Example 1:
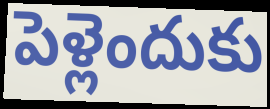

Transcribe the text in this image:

పెళ్లెందుకు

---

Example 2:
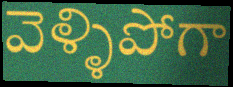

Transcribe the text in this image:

వెళ్ళిపోగా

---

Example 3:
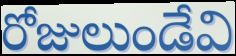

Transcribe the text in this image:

రోజులుండేవి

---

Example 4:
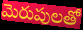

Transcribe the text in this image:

మెరుపులతో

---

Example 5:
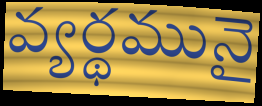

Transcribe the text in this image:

వ్యర్థమునై